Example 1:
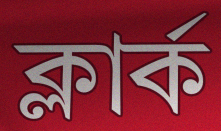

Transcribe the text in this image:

ক্লার্ক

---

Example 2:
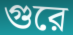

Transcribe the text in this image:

গুরে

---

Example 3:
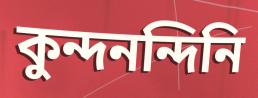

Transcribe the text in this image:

কুন্দনন্দিনি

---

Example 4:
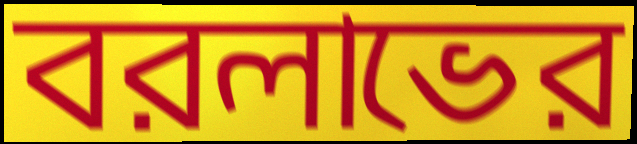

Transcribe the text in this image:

বরলাভের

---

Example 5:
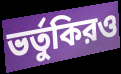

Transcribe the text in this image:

ভর্তুকিরও